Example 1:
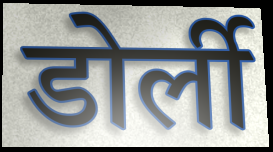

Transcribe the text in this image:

डोर्ली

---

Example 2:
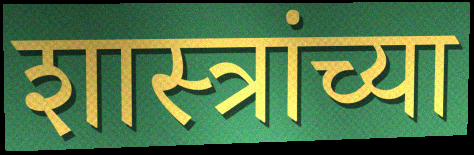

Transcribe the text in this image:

शास्त्रांच्या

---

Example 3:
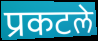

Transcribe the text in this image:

प्रकटले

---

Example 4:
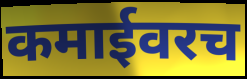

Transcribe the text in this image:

कमाईवरच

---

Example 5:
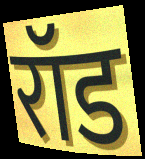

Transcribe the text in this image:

रॉड